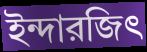
ইন্দারজিৎ